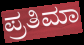
ಪ್ರತಿಮಾ